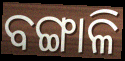
ବଙ୍ଗାଳି